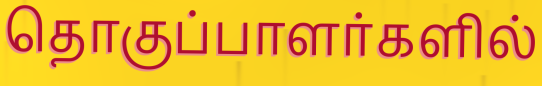
தொகுப்பாளர்களில்